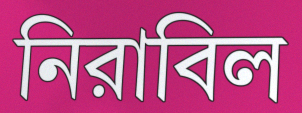
নিরাবিল